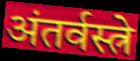
अंतर्वस्त्रे